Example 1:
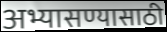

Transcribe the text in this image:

अभ्यासण्यासाठी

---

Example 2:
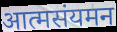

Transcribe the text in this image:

आत्मसंयमन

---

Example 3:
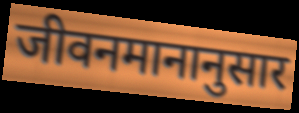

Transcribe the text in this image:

जीवनमानानुसार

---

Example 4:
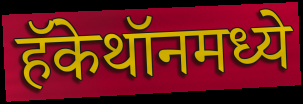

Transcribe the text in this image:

हॅकेथॉनमध्ये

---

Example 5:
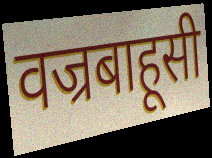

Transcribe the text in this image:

वज्रबाहूसी